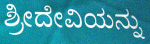
ಶ್ರೀದೇವಿಯನ್ನು